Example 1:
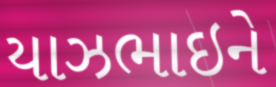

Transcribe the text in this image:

યાઝભાઇને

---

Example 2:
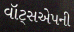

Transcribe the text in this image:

વૉટ્સએપની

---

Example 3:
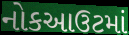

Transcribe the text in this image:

નોકઆઉટમાં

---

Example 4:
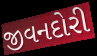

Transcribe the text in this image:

જીવનદોરી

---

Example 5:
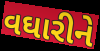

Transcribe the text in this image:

વઘારીને